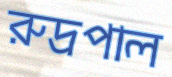
রুদ্রপাল